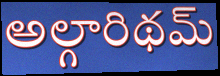
అల్గారిథమ్